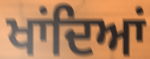
ਖਾਂਦਿਆਂ